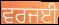
ਵਰਜਈ